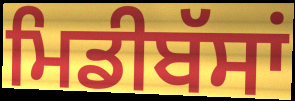
ਮਿਡੀਬੱਸਾਂ